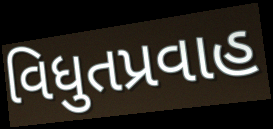
વિધુતપ્રવાહ